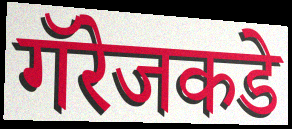
गॅरेजकडे